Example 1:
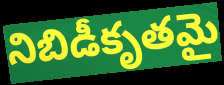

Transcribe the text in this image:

నిబిడీకృతమై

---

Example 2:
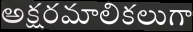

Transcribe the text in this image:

అక్షరమాలికలుగా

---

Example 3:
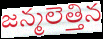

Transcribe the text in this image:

జన్మలెత్తిన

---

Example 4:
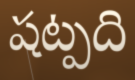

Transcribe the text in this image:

షట్పది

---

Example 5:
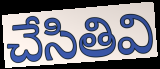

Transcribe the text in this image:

చేసితివి